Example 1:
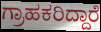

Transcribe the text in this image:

ಗ್ರಾಹಕರಿದ್ದಾರೆ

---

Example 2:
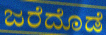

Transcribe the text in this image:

ಜರೆದೊಡೆ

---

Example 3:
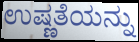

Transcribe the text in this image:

ಉಷ್ಣತೆಯನ್ನು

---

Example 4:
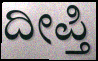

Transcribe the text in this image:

ದೀಪ್ತಿ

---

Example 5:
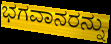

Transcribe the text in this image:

ಭಗವಾನರನ್ನು